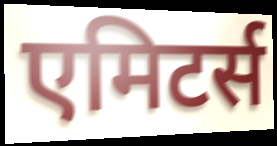
एमिटर्स